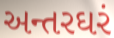
અન્તરઘરં